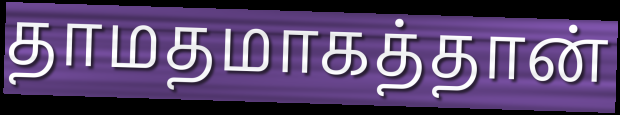
தாமதமாகத்தான்